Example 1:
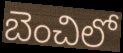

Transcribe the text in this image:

బెంచిలో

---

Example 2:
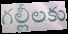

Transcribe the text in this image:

గల్లీలకు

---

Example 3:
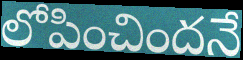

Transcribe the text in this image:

లోపించిందనే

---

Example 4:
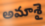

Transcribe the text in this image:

అమాశై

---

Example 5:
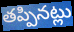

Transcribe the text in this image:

తప్పినట్లు